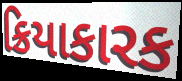
ક્રિયાકારક